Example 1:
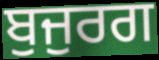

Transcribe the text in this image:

ਬੁਜੁਰਗ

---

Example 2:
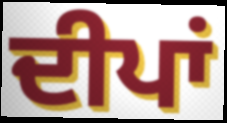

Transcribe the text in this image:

ਦੀਪਾਂ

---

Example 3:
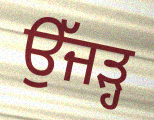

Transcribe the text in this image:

ਉੱਜੜ੍ਹ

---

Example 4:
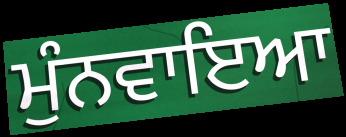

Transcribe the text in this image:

ਮੁੰਨਵਾਇਆ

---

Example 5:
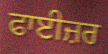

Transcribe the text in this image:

ਫਾਈਜ਼ਰ